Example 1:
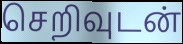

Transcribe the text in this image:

செறிவுடன்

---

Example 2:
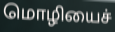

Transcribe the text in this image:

மொழியைச்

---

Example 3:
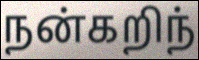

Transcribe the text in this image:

நன்கறிந்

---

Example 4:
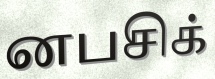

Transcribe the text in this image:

னபசிக்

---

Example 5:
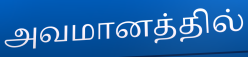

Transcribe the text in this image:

அவமானத்தில்